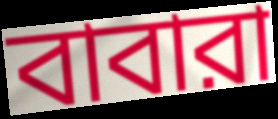
বাবারা